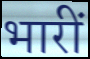
भारीं